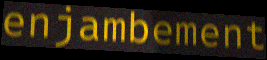
enjambement